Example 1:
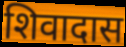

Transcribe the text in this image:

शिवादास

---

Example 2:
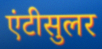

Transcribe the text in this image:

एंटीसुलर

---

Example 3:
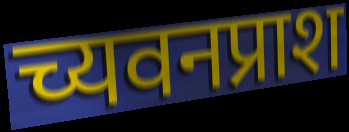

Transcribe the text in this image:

च्‍यवनप्राश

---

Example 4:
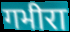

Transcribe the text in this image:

गभीरा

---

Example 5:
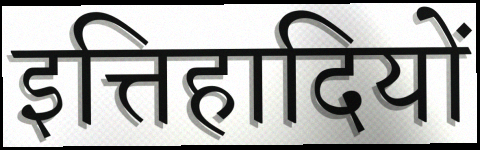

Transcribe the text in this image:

इत्तिहादियों